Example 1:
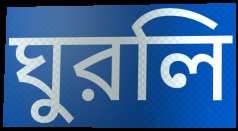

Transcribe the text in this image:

ঘুরলি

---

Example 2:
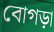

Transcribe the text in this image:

বোগড়া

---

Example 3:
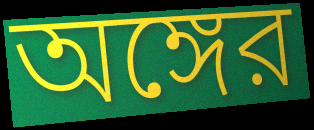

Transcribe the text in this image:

অঙ্গের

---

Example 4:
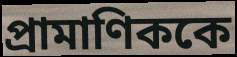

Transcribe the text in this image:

প্রামাণিককে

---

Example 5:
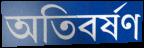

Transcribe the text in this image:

অতিবর্ষণ